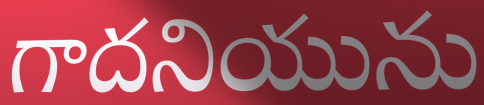
గాదనియును